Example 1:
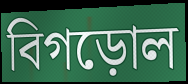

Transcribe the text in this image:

বিগড়োল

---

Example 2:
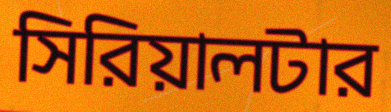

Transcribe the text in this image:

সিরিয়ালটার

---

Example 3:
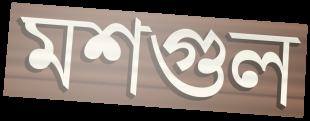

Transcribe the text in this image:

মশগুল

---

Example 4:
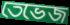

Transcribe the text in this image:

তেভেজ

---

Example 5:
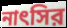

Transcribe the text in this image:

নাৎসির